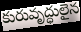
కురువృద్ధులైన